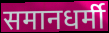
समानधर्मी